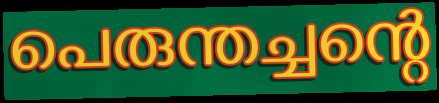
പെരുന്തച്ചന്റെ